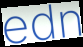
edn